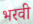
भरवी